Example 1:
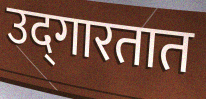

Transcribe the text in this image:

उद्‌गारतात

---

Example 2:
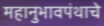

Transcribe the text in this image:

महानुभावपंथाचे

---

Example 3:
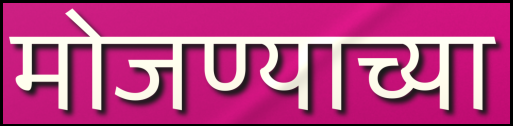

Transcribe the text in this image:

मोजण्याच्या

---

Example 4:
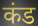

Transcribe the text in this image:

कंड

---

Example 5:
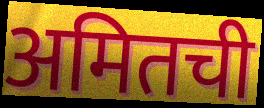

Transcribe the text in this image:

अमितची